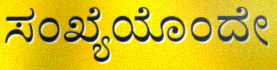
ಸಂಖ್ಯೆಯೊಂದೇ